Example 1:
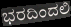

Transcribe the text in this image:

ಭರದಿಂದಲಿ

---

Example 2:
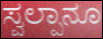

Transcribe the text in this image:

ಸ್ವಲ್ಪಾನೂ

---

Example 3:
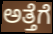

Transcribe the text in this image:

ಅತ್ತೆಗೆ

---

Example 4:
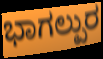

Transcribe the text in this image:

ಭಾಗಲ್ಪುರ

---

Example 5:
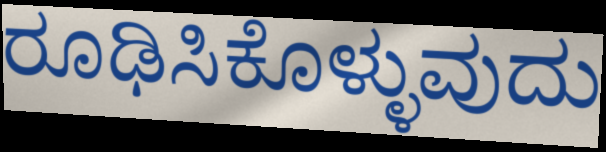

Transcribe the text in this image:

ರೂಢಿಸಿಕೊಳ್ಳುವುದು